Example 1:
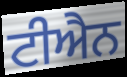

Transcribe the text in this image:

ਟੀਐਨ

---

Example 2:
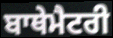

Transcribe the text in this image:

ਬਾਥੇਮੈਟਰੀ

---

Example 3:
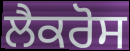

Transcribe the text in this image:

ਲੈਕਰੋਸ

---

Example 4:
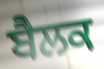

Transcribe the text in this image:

ਬੈਲਕ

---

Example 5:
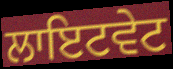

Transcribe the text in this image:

ਲਾਇਟਵੇਟ